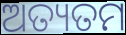
ଅତ୍ୟତମ